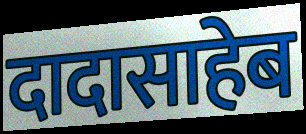
दादासाहेब